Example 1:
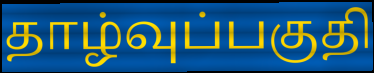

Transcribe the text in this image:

தாழ்வுப்பகுதி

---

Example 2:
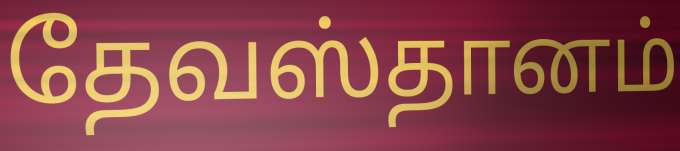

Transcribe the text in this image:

தேவஸ்தானம்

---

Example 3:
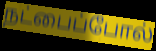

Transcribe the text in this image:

நட்பைப்போல்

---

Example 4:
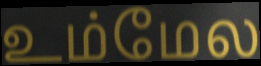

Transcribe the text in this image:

உம்மேல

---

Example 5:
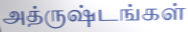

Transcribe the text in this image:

அத்ருஷ்டங்கள்